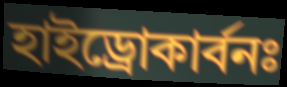
হাইড্রোকার্বনঃ